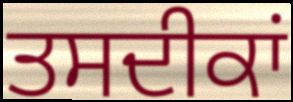
ਤਸਦੀਕਾਂ